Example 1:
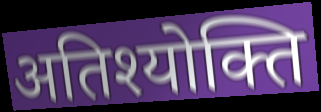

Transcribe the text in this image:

अतिश्योक्ति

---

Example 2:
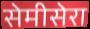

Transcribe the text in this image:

सेमीसेरा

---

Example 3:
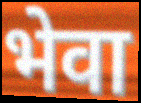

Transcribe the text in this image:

भेवा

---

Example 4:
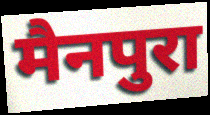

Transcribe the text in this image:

मैनपुरा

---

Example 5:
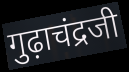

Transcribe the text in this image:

गुढ़ाचंद्रजी